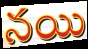
నయి